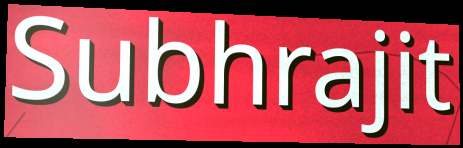
Subhrajit